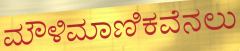
ಮೌಳಿಮಾಣಿಕವೆನಲು